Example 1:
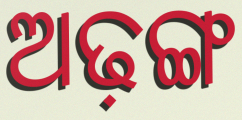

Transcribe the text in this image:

ଅଢ଼ଙ୍ଗ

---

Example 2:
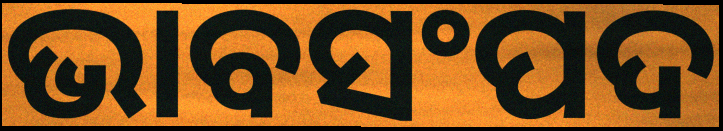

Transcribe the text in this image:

ଭାବସଂପଦ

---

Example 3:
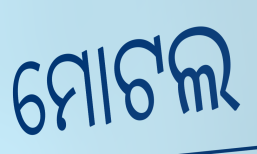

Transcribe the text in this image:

ମୋଟଲ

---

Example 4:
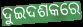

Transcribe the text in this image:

ଦୁଇଦଶକରେ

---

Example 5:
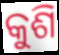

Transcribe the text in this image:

କୁଶି